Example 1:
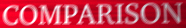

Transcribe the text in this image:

COMPARISON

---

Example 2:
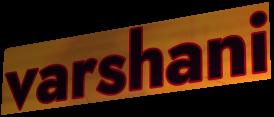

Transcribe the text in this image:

varshani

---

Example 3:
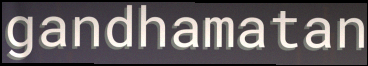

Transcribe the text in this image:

gandhamatan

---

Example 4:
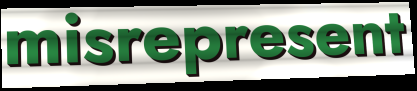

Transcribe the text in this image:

misrepresent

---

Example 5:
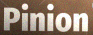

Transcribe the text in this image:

Pinion